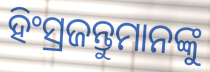
ହିଂସ୍ରଜନ୍ତୁମାନଙ୍କୁ